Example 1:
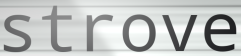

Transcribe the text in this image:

strove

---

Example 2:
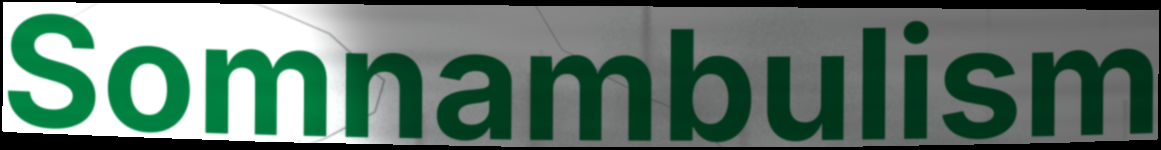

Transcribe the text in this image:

Somnambulism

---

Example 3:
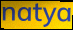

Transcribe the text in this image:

natya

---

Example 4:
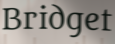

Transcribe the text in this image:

Bridget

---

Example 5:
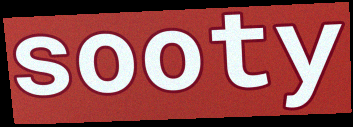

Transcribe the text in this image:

sooty